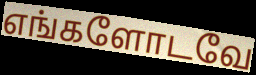
எங்களோடவே